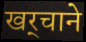
खर्चाने